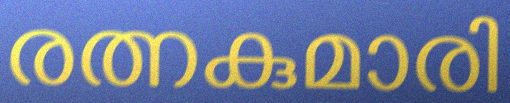
രത്നകുമാരി